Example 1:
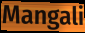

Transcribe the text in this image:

Mangali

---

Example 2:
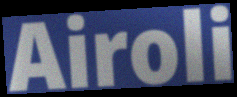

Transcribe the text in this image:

Airoli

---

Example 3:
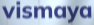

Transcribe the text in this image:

vismaya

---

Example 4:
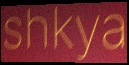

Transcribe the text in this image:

shkya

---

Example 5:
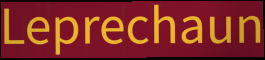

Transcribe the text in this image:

Leprechaun